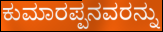
ಕುಮಾರಪ್ಪನವರನ್ನು